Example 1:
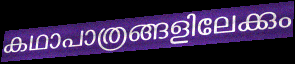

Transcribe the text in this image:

കഥാപാത്രങ്ങളിലേക്കും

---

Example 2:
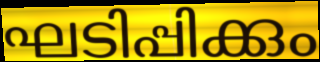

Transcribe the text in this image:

ഘടിപ്പിക്കും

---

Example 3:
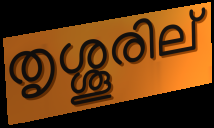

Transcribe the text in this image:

തൃശ്ശൂരില്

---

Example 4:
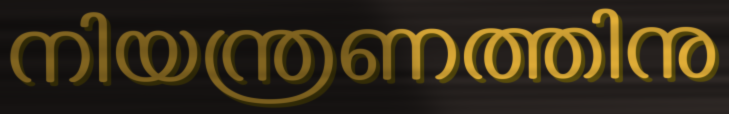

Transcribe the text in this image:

നിയന്ത്രണത്തിനു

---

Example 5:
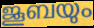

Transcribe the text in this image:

ജൂബയും